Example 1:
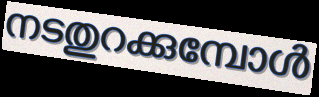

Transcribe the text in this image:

നടതുറക്കുമ്പോൾ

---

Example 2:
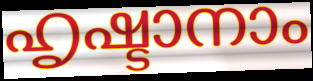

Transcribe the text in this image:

ഹൃഷ്ടാനാം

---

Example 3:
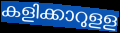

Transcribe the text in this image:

കളിക്കാറുളള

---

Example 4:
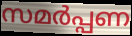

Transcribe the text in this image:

സമർപ്പണ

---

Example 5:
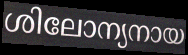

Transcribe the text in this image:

ശിലോന്യനായ